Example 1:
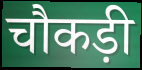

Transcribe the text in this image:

चौकड़ी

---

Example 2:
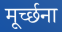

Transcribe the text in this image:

मूर्च्छना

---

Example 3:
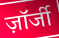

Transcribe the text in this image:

ज़ॉर्जी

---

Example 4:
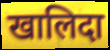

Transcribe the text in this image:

खालिदा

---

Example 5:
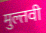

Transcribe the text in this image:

मुल्तवी